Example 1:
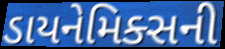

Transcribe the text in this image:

ડાયનેમિક્સની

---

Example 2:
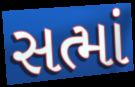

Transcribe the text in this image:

સત્માં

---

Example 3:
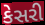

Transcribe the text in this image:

કેસરી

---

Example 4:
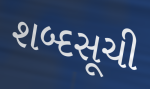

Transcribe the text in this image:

શબ્દસૂચી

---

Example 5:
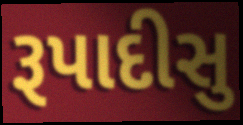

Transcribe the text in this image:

રૂપાદીસુ